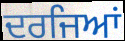
ਦਰਜਿਆਂ